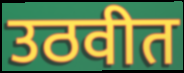
उठवीत